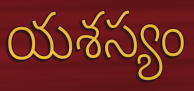
యశస్యం